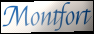
Montfort